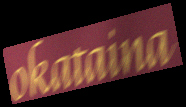
okataina